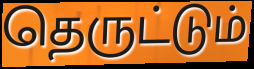
தெருட்டும்